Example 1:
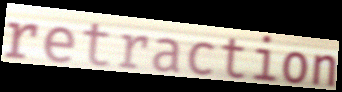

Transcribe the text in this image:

retraction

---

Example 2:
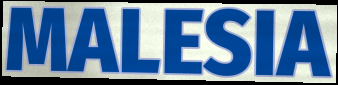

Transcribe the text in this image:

MALESIA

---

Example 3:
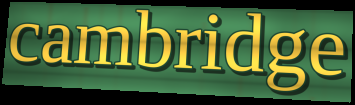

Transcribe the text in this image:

cambridge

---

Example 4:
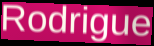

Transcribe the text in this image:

Rodrigue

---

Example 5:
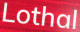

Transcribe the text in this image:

Lothal